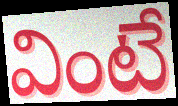
వింటే